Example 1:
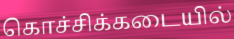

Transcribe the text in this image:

கொச்சிக்கடையில்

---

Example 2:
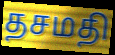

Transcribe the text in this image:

தசமதி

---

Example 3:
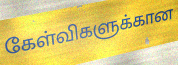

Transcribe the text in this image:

கேள்விகளுக்கான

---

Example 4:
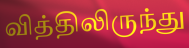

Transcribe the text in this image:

வித்திலிருந்து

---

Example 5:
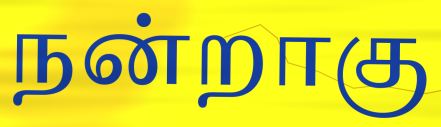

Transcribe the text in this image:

நன்றாகு